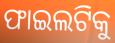
ଫାଇଲଟିକୁ